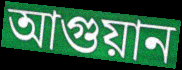
আগুয়ান